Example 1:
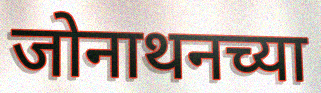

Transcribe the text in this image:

जोनाथनच्या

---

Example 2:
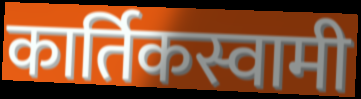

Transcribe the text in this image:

कार्तिकस्वामी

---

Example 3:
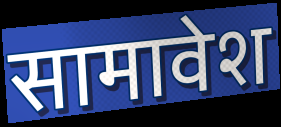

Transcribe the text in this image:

सामावेश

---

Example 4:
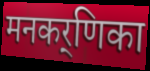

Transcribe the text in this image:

मनकर्णिका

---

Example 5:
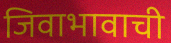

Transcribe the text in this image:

जिवाभावाची